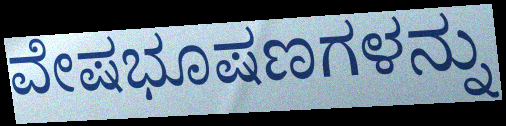
ವೇಷಭೂಷಣಗಳನ್ನು